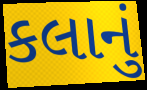
કલાનું